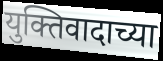
युक्तिवादाच्या